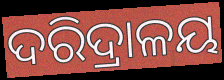
ଦରିଦ୍ରାଳୟ